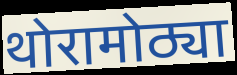
थोरामोठ्या